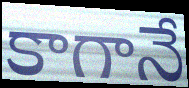
కాగానే